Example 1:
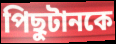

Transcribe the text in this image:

পিছুটানকে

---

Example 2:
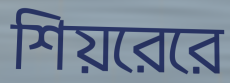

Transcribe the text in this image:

শিয়রেরে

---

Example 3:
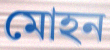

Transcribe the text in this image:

মোহন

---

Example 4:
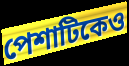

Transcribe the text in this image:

পেশাটিকেও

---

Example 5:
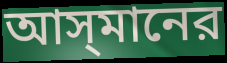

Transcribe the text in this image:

আস্‌মানের